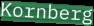
Kornberg